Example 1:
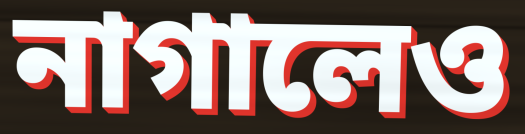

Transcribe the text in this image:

নাগালেও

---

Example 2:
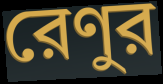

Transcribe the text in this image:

রেণুর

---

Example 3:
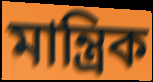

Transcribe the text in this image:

মান্ত্রিক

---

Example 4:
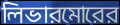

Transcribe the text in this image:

লিভারমোরের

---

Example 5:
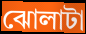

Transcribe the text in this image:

ঝোলাটা